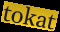
tokat